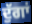
ਦੁੱਗਾਂ